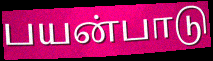
பயன்பாடு